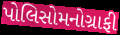
પોલિસોમનોગ્રાફી